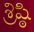
శ్రిష్ఠి